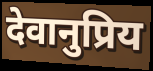
देवानुप्रिय